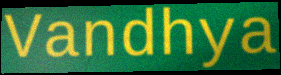
Vandhya